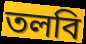
তলবি